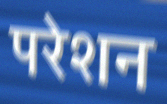
परेशन